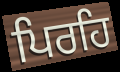
ਪਿਰਹਿ